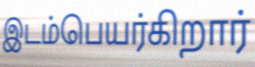
இடம்பெயர்கிறார்